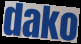
dako